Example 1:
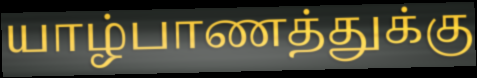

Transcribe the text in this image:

யாழ்பாணத்துக்கு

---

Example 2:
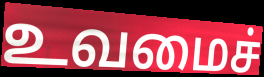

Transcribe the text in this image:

உவமைச்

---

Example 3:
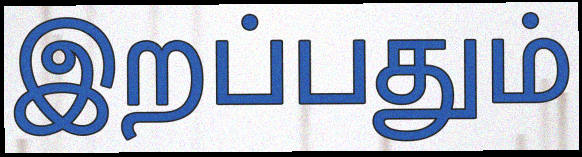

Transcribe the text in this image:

இறப்பதும்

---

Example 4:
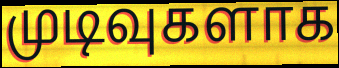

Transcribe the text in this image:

முடிவுகளாக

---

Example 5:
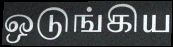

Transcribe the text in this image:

ஒடுங்கிய